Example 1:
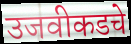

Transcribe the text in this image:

उजवीकडचे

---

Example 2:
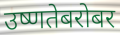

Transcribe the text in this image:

उष्णतेबरोबर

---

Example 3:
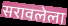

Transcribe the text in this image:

सरावलेला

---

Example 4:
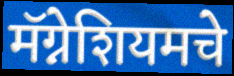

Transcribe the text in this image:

मॅग्नेशियमचे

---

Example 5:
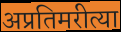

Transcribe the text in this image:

अप्रतिमरीत्या